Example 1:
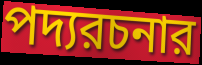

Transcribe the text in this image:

পদ্যরচনার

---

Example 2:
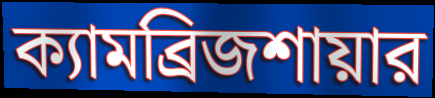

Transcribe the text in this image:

ক্যামব্রিজশায়ার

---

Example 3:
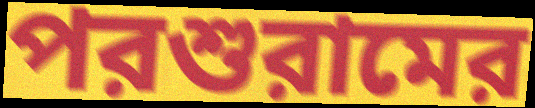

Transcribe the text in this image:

পরশুরামের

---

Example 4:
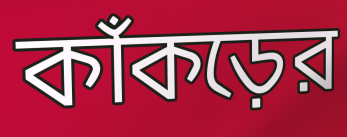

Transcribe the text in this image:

কাঁকড়ের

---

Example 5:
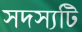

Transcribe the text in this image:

সদস্যটি